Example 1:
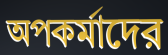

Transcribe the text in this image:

অপকর্মাদের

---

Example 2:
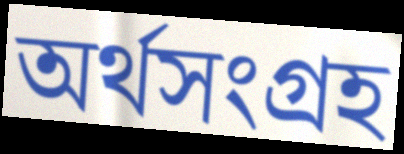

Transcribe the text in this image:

অর্থসংগ্রহ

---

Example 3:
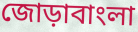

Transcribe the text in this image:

জোড়াবাংলা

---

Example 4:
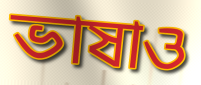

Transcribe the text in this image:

ভাষাও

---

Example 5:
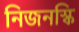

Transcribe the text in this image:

নিজনস্কি